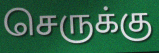
செருக்கு